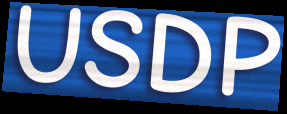
USDP